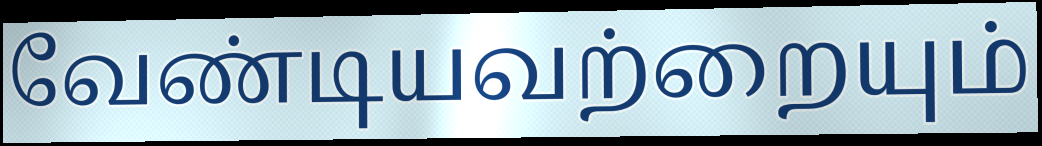
வேண்டியவற்றையும்